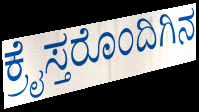
ಕ್ರೈಸ್ತರೊಂದಿಗಿನ